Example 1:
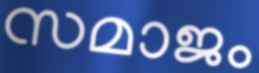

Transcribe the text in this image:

സമാജം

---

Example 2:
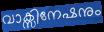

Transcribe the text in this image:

വാക്സിനേഷനും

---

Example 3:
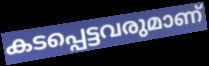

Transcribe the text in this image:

കടപ്പെട്ടവരുമാണ്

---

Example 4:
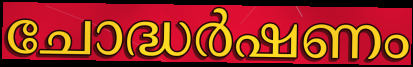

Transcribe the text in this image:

ചോദ്ധർഷണം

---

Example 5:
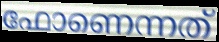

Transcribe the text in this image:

ഫോണെന്നത്